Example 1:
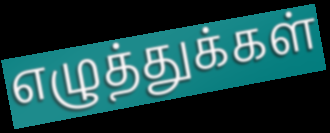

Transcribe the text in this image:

எழுத்துக்கள்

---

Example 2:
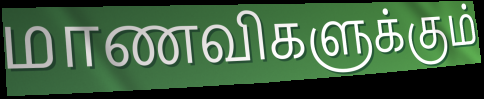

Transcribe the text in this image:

மாணவிகளுக்கும்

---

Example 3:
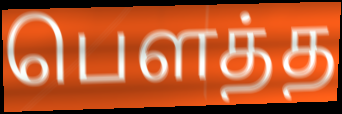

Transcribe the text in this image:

பௌத்த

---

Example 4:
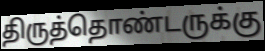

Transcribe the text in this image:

திருத்தொண்டருக்கு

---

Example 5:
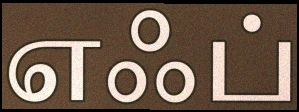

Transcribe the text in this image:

எஃப்